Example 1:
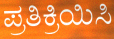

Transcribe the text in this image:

ಪ್ರತಿಕ್ರಿಯಿಸಿ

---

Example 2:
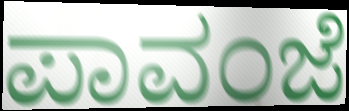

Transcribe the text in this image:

ಪಾವಂಜೆ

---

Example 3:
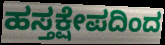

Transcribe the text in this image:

ಹಸ್ತಕ್ಷೇಪದಿಂದ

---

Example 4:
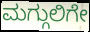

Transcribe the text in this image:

ಮಗ್ಗುಲಿಗೇ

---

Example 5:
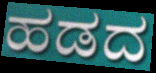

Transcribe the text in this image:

ಹಡದ